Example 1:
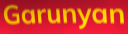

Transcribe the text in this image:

Garunyan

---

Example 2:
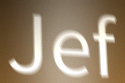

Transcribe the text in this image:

Jef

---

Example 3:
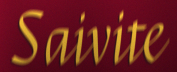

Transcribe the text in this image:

Saivite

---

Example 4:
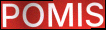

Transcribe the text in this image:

POMIS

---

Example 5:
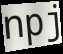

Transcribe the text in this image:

npj